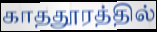
காததூரத்தில்